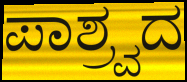
ಪಾಶ್ರ್ವದ